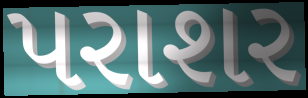
પરાશર